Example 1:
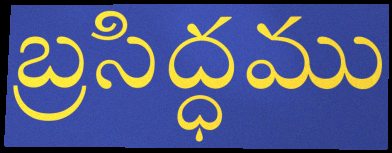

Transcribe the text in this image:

బ్రసిద్ధము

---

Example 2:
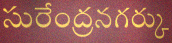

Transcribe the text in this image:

సురేంద్రనగర్కు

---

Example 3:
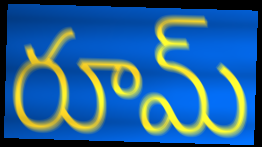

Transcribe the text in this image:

రూమ్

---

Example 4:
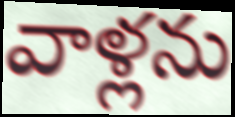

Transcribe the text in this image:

వాళ్లను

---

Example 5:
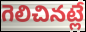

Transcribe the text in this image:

గెలిచినట్లే